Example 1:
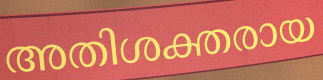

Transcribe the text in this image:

അതിശക്തരായ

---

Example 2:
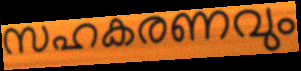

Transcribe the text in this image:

സഹകരണവും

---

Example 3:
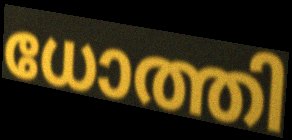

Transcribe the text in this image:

ധോത്തി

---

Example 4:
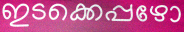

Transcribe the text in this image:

ഇടക്കെപ്പഴോ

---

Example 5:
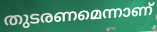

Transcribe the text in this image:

തുടരണമെന്നാണ്